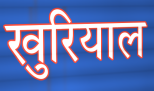
खुरियाल